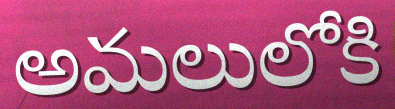
అమలులోకి